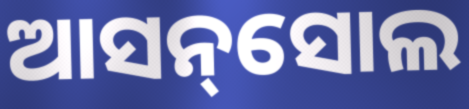
ଆସନ୍‌ସୋଲ